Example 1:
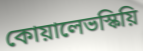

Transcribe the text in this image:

কোয়ালেভস্কিয়ি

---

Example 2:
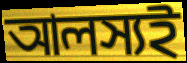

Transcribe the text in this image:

আলস্যই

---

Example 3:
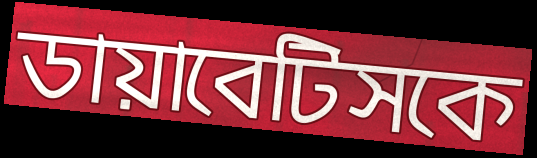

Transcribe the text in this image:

ডায়াবেটিসকে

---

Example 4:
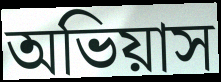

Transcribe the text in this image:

অভিয়াস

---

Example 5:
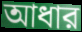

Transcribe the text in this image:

আধার